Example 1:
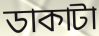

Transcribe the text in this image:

ডাকাটা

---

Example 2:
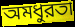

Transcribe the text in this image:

অমধুরতা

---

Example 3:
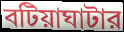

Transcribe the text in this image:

বটিয়াঘাটার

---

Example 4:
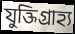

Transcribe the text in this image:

যুক্তিগ্রাহ্য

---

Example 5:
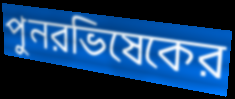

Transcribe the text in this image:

পুনরভিষেকের